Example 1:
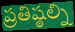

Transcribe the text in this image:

ప్రతిష్ఠల్ని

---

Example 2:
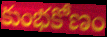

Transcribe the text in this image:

కుంభకోణం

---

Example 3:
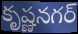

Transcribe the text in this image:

కృష్ణనగర్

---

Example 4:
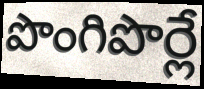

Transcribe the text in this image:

పొంగిపొర్లే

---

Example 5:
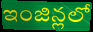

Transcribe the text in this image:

ఇంజిన్లలో